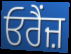
ਓਰੈਂਜ਼